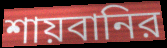
শায়বানির